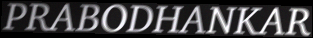
PRABODHANKAR